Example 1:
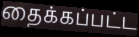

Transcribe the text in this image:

தைக்கப்பட்ட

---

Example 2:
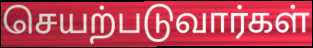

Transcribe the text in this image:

செயற்படுவார்கள்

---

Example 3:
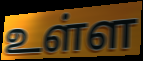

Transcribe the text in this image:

உள்ள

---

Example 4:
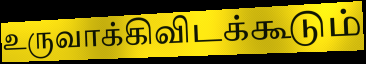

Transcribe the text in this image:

உருவாக்கிவிடக்கூடும்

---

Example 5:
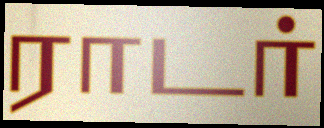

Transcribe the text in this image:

ராடர்